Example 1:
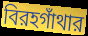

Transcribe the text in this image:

বিরহগাঁথার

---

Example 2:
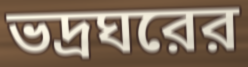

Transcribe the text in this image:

ভদ্রঘরের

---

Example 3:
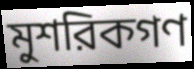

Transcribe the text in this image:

মুশরিকগণ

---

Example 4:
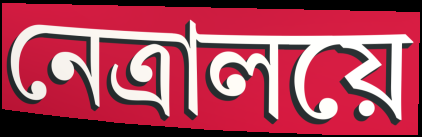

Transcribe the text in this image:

নেত্রালয়ে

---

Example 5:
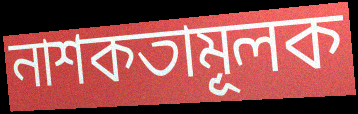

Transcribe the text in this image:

নাশকতামূলক